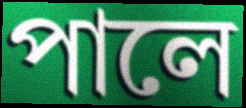
পালে